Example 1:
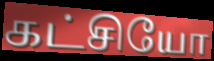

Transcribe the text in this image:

கட்சியோ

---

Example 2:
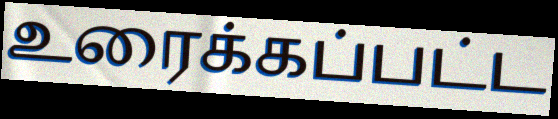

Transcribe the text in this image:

உரைக்கப்பட்ட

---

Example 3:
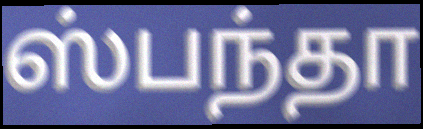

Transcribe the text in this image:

ஸ்பந்தா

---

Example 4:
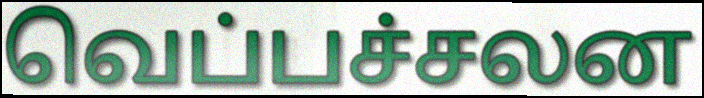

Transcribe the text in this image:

வெப்பச்சலன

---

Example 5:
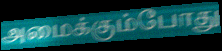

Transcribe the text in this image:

அமைக்கும்போது